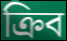
ক্রিব